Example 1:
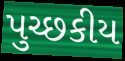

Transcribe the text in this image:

પુચ્છકીય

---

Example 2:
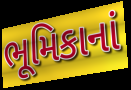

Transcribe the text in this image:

ભૂમિકાનાં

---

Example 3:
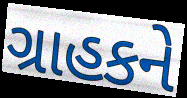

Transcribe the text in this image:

ગ્રાહકને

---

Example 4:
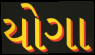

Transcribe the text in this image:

યોગા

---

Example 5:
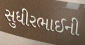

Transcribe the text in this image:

સુધીરભાઈની